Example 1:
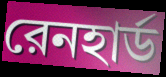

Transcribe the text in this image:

রেনহার্ড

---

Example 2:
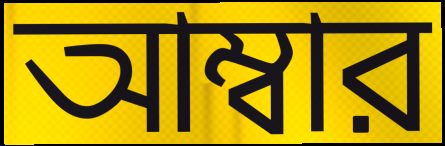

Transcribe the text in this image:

আম্বার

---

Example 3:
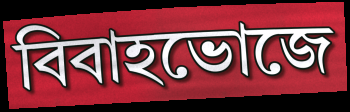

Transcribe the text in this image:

বিবাহভোজে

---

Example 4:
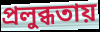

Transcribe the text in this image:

প্রলুব্ধতায়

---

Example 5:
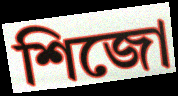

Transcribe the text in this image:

শিজো